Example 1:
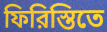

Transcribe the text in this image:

ফিরিস্তিতে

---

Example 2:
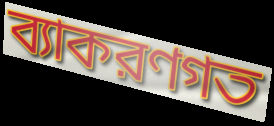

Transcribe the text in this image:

ব্যাকরণগত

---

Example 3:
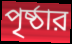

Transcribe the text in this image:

পৃষ্ঠার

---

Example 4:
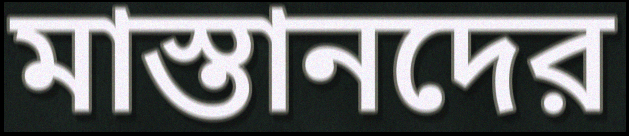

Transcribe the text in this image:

মাস্তানদের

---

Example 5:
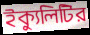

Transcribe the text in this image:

ইক্যুলিটির